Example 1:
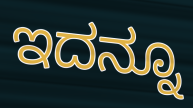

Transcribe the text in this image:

ಇದನ್ನೂ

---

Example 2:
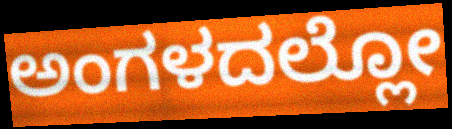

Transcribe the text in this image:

ಅಂಗಳದಲ್ಲೋ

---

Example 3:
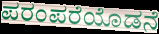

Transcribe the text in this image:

ಪರಂಪರೆಯೊಡನೆ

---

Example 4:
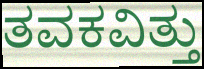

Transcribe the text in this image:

ತವಕವಿತ್ತು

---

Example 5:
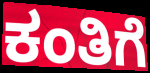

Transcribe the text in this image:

ಕಂತಿಗೆ